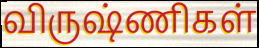
விருஷ்ணிகள்